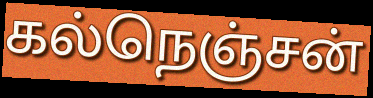
கல்நெஞ்சன்